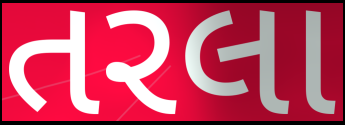
તરલા